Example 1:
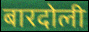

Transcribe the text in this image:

बारदोली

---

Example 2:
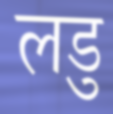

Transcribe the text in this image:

लडु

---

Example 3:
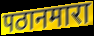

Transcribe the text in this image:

पठानमारा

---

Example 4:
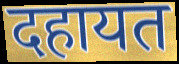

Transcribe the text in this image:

दहायत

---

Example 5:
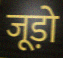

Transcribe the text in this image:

जूड़ो